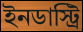
ইনডাস্ট্রি